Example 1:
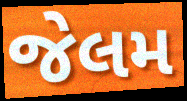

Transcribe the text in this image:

જેલમ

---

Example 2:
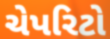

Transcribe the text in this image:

ચેપરિટો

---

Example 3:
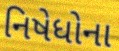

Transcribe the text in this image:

નિષેધોના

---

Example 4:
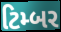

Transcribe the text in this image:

ટિમ્બર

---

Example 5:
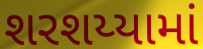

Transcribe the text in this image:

શરશય્યામાં